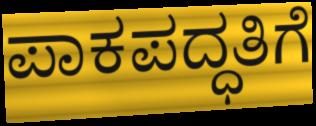
ಪಾಕಪದ್ಧತಿಗೆ